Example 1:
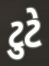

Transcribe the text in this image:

ટુટે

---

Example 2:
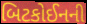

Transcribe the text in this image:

બિટકોઈનની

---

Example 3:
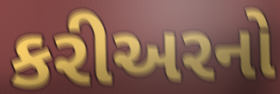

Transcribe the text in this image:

કરીઅરનો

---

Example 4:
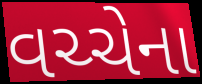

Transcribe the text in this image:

વચ્ચેના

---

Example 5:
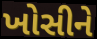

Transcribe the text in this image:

ખોસીને